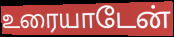
உரையாடேன்